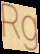
Rg